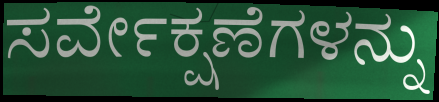
ಸರ್ವೇಕ್ಷಣೆಗಳನ್ನು